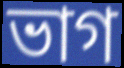
ভাগ